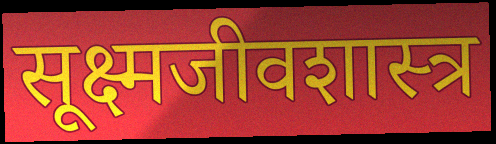
सूक्ष्मजीवशास्त्र